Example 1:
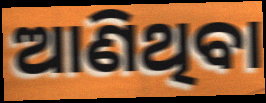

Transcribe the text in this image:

ଆଣିଥିବା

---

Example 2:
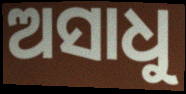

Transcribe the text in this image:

ଅସାଧୁ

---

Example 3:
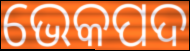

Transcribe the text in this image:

ଭେକପଦ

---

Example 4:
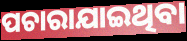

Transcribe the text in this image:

ପଚାରାଯାଇଥିବା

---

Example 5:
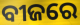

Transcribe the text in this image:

ବୀଜରେ